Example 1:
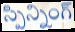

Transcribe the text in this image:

స్పిన్నింగ్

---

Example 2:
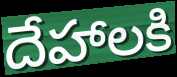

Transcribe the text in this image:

దేహాలకి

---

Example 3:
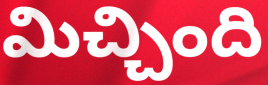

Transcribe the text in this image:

మిచ్చింది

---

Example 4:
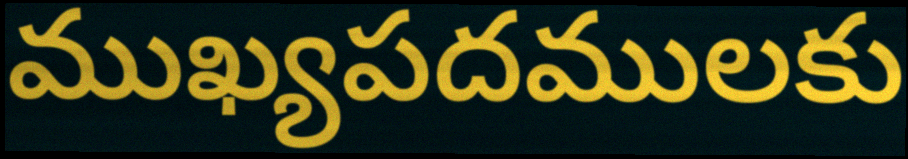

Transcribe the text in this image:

ముఖ్యపదములకు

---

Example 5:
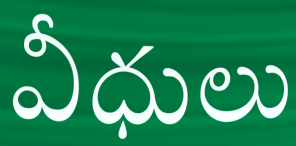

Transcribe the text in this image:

వీధులు